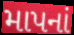
માપનાં